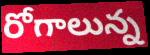
రోగాలున్న